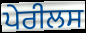
ਪੇਰੀਲਸ